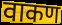
वाकण